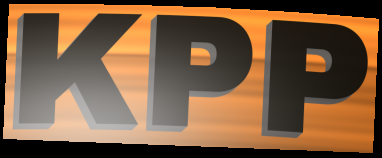
KPP